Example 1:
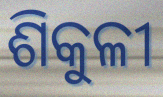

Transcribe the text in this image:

ଶିକୁଳୀ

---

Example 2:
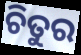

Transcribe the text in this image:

ଚିତୁର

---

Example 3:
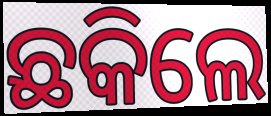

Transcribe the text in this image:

ଛକିଲେ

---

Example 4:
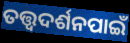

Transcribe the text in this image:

ତତ୍ତ୍ଵଦର୍ଶନପାଇଁ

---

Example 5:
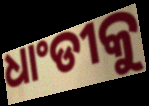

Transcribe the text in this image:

ଧାଂଡୀକୁ